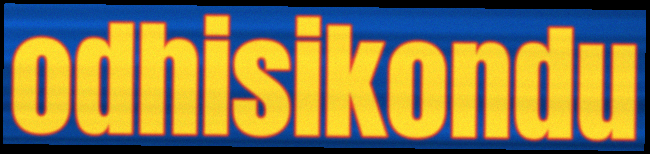
odhisikondu